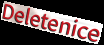
Deletenice